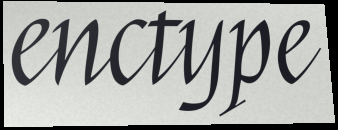
enctype